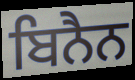
ਬਿਨੈਨ